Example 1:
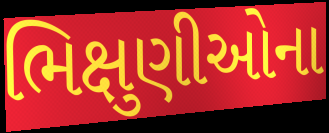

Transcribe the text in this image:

ભિક્ષુણીઓના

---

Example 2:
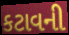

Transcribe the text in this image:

કટાવની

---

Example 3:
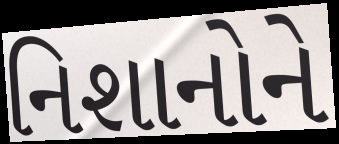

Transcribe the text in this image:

નિશાનોને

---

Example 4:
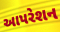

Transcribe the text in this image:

આપરેશન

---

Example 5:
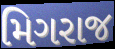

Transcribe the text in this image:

મિગરાજ